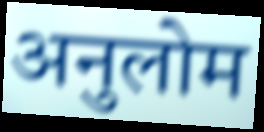
अनुलोम